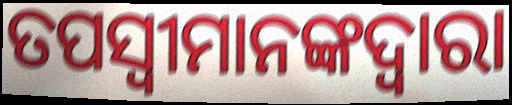
ତପସ୍ୱୀମାନଙ୍କଦ୍ୱାରା